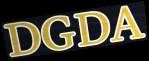
DGDA